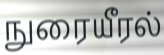
நுரையீரல்